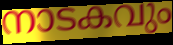
നാടകവും